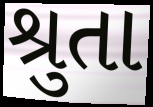
શ્રુતા